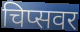
चिप्सवर